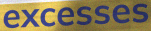
excesses